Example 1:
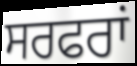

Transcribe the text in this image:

ਸਰਫਰਾਂ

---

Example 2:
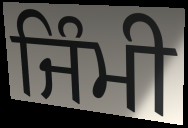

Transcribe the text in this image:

ਜਿੰਮੀ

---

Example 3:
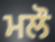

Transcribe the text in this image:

ਮਲੌ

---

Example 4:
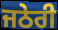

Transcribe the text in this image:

ਜਠੇਰੀ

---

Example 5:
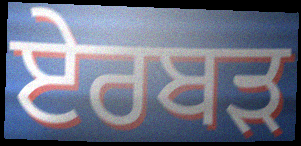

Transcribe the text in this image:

ਏਰਬੜ